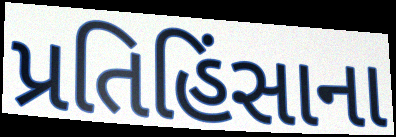
પ્રતિહિંસાના